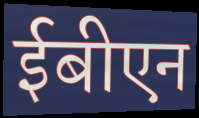
ईबीएन